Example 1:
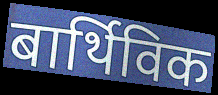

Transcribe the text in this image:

बार्थिविक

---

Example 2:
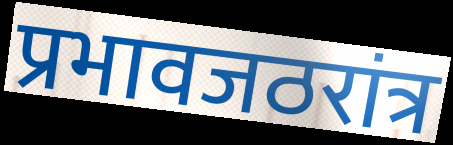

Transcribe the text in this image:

प्रभावजठरांत्र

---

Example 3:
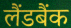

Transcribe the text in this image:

लैंडबैंक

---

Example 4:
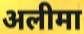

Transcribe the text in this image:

अलीमा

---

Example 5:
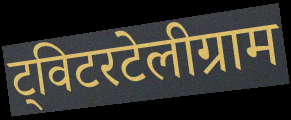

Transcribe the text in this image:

ट्विटरटेलीग्राम